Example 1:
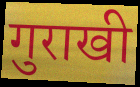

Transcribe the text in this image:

गुराखी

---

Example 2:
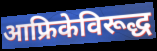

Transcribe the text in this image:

आफ्रिकेविरूद्ध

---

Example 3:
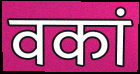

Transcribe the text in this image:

वकां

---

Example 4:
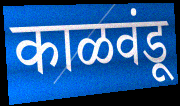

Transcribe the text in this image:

काळवंडू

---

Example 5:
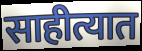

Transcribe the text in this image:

साहीत्यात